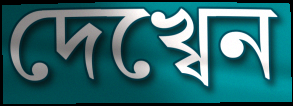
দেখ্বেন